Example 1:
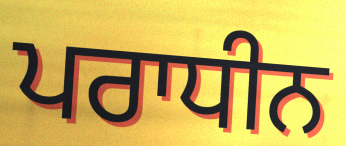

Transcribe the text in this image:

ਪਰਾਧੀਨ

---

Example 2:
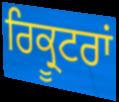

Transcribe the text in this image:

ਰਿਕ੍ਰੂਟਰਾਂ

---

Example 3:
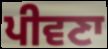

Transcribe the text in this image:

ਪੀਵਣਾ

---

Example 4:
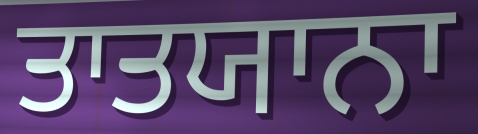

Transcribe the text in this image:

ਤਾਤਯਾਨਾ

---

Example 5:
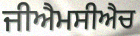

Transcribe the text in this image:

ਜੀਐਮਸੀਐਚ